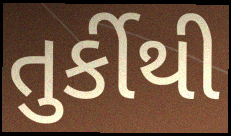
તુર્કીથી